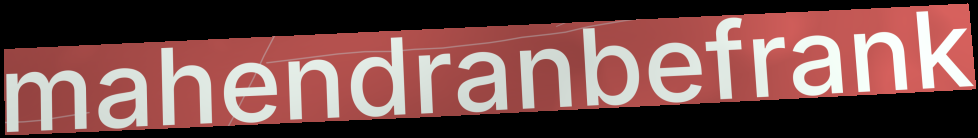
mahendranbefrank